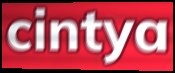
cintya